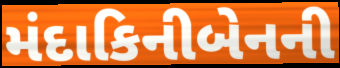
મંદાકિનીબેનની